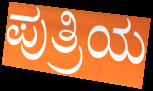
ಪುತ್ರಿಯ